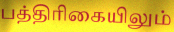
பத்திரிகையிலும்